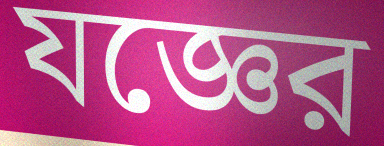
যজ্ঞের